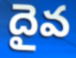
దైవ